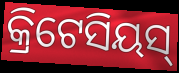
କ୍ରିଟେସିୟସ୍